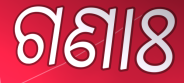
ଗଣାଃ